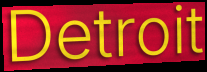
Detroit